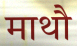
माथौ